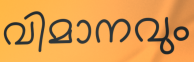
വിമാനവും